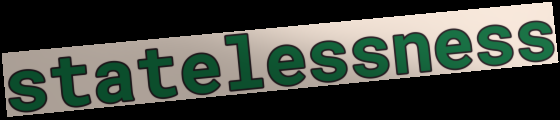
statelessness